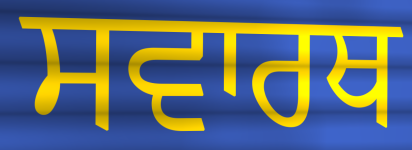
ਸਵਾਰਥ